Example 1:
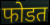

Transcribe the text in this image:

फोडत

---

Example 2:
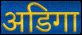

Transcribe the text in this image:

अडिगा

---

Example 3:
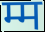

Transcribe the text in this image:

म्म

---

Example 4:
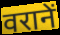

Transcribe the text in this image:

वरानें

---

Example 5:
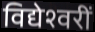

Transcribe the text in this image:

विद्येश्वरीं